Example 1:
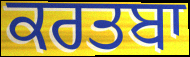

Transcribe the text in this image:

ਕਰਤਬਾ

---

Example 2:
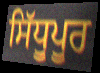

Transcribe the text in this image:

ਸਿੱਧੂਪੂਰ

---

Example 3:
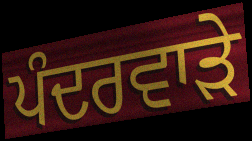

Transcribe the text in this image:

ਪੰਦਰਵਾੜੇ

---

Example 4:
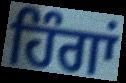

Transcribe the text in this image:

ਹਿੰਗਾਂ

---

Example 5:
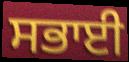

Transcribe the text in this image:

ਸਭਾਈ